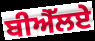
ਬੀਐੱਲਏ